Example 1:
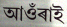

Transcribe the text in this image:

আওঁৰাই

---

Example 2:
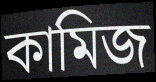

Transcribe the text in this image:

কামিজ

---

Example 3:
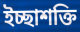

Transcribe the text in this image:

ইচ্ছাশক্তি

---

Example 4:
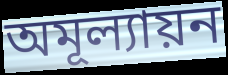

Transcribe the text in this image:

অমূল্যায়ন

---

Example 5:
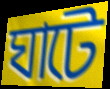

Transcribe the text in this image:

ঘাটে